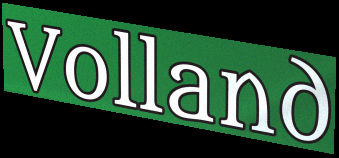
Volland